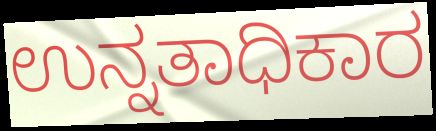
ಉನ್ನತಾಧಿಕಾರ